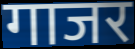
गाजर